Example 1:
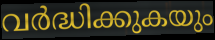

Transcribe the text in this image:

വർദ്ധിക്കുകയും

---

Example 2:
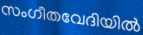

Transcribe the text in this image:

സംഗീതവേദിയിൽ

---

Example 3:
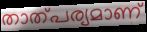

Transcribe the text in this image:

താത്പര്യമാണ്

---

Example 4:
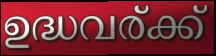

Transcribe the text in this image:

ഉദ്ധവര്ക്ക്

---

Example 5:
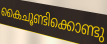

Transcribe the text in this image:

കൈചൂണ്ടിക്കൊണ്ടു